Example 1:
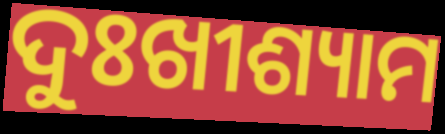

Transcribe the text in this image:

ଦୁଃଖୀଶ୍ୟାମ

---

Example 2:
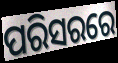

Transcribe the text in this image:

ପରିସରରେ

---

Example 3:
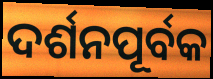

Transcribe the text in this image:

ଦର୍ଶନପୂର୍ବକ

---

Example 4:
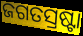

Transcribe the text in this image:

ଜଗତସ୍ରଷ୍ଟା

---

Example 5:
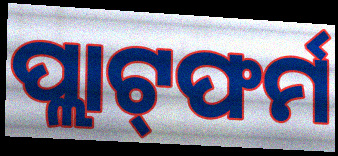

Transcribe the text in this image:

ପ୍ଲାଟ୍‌ଫର୍ମ